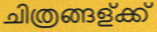
ചിത്രങ്ങള്ക്ക്